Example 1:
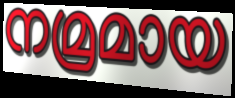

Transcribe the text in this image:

നമ്രമായ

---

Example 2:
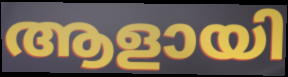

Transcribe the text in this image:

ആളായി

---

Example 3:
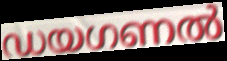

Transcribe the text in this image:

ഡയഗണൽ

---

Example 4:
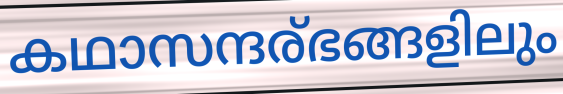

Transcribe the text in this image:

കഥാസന്ദര്ഭങ്ങളിലും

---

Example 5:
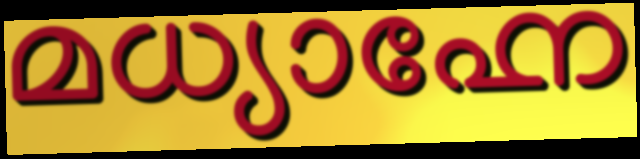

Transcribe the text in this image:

മധ്യാഹ്നേ